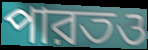
পারতও